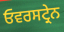
ਓਵਰਸਟ੍ਰੇਨ